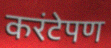
करंटेपण